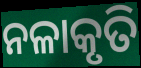
ନଳାକୃତି